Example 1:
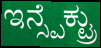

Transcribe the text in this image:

ಇನ್ಸ್ಪೆಕ್ಟ್ರು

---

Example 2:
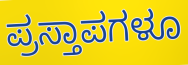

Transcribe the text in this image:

ಪ್ರಸ್ತಾಪಗಳೂ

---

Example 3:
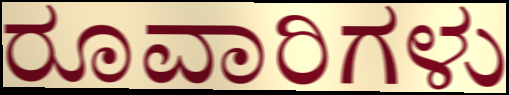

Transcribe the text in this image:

ರೂವಾರಿಗಳು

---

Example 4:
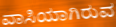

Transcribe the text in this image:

ವಾಸಿಯಾಗಿರುವ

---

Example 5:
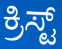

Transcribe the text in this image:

ಕ್ರಿಸ್ಟ್